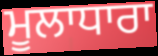
ਮੂਲਾਧਾਰਾ